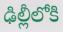
ఢిల్లీలోకి